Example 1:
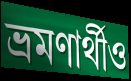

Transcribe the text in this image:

ভ্রমণার্থীও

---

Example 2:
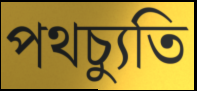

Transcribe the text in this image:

পথচ্যুতি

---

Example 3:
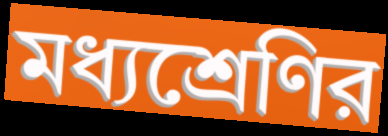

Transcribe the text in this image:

মধ্যশ্রেণির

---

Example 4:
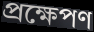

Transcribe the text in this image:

প্রক্ষেপণ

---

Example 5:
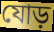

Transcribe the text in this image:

যোড়